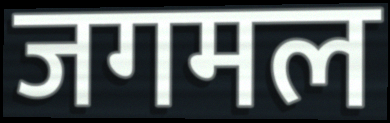
जगमल